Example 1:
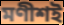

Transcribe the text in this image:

মণীশই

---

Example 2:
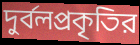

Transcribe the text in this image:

দুর্বলপ্রকৃতির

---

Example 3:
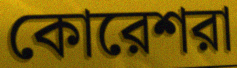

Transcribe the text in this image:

কোরেশরা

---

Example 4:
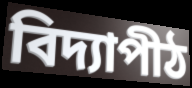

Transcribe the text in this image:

বিদ্যাপীঠ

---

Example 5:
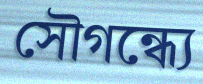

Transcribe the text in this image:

সৌগন্ধ্যে